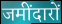
जमींदारों